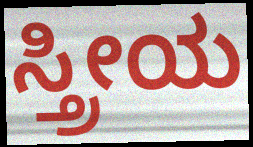
ಸ್ತ್ರೀಯ